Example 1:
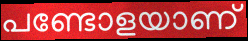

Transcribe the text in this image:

പണ്ടോളയാണ്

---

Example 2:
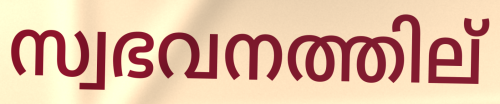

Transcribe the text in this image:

സ്വഭവനത്തില്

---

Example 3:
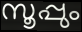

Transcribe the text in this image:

സൂപ്പും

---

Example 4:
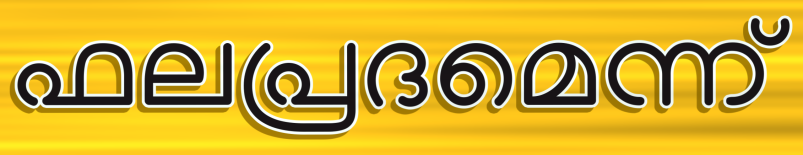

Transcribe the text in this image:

ഫലപ്രദമെന്ന്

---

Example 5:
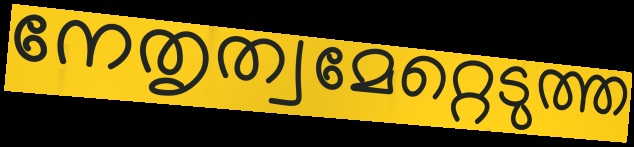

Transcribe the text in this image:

നേതൃത്വമേറ്റെടുത്ത